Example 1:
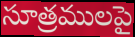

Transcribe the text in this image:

సూత్రములపై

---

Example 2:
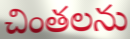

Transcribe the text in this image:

చింతలను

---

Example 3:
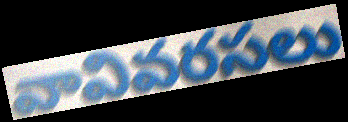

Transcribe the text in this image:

వావివరసలు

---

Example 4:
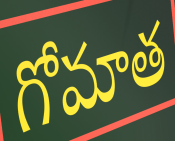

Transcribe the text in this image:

గోమాత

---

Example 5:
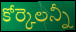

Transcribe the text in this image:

కోర్కెలన్నీ